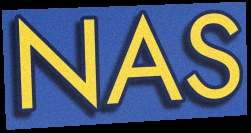
NAS